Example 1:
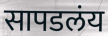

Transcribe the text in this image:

सापडलंय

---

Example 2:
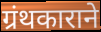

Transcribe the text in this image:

ग्रंथकाराने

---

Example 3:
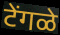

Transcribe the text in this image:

टेंगळे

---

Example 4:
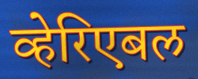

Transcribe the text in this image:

व्हेरिएबल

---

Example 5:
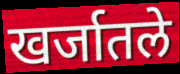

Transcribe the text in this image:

खर्जातले